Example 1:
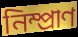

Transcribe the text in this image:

নিম্প্রাণ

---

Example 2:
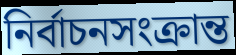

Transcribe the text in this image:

নির্বাচনসংক্রান্ত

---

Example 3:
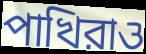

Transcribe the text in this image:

পাখিরাও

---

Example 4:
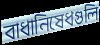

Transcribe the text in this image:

বাধানিষেধগুলি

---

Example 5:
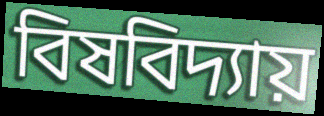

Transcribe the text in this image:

বিষবিদ্যায়